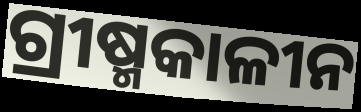
ଗ୍ରୀଷ୍ମକାଳୀନ